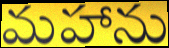
మహాను